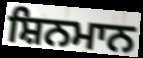
ਸ਼ਿਨਮਾਨ